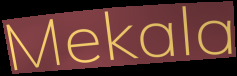
Mekala